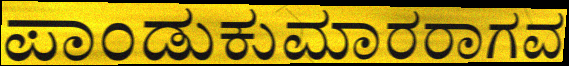
ಪಾಂಡುಕುಮಾರರಾಗವ